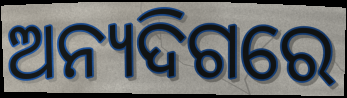
ଅନ୍ୟଦିଗରେ